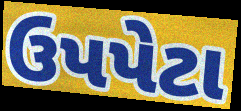
ઉપપેટા